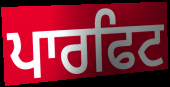
ਪਾਰਫਿਟ